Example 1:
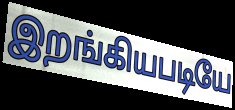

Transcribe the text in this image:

இறங்கியபடியே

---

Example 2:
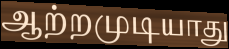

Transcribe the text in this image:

ஆற்றமுடியாது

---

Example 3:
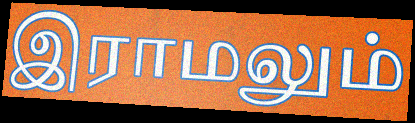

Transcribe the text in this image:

இராமலும்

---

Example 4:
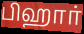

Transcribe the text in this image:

பிஹார்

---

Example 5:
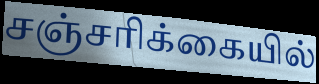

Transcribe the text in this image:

சஞ்சரிக்கையில்